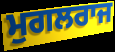
ਮੁਗਲਰਾਜ